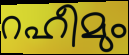
റഹീമും